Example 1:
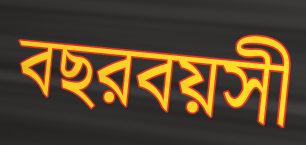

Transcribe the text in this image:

বছরবয়সী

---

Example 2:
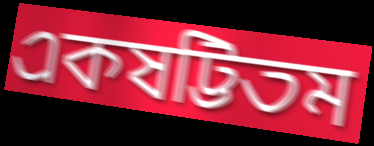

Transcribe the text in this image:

একষট্টিতম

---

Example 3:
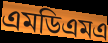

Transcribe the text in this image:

এমডিএমএ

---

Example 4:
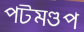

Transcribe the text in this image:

পটমণ্ডপ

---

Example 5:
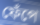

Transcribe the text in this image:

ফেঁপে